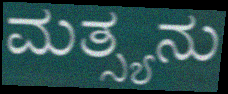
ಮತ್ಸ್ಯನು